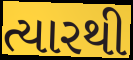
ત્યારથી